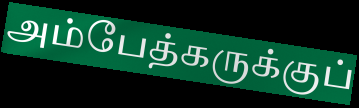
அம்பேத்கருக்குப்